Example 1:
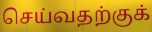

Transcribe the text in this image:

செய்வதற்குக்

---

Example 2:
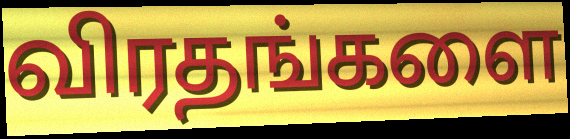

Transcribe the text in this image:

விரதங்களை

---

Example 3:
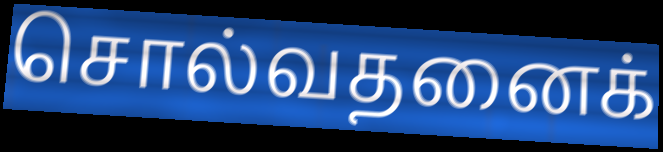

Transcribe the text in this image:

சொல்வதனைக்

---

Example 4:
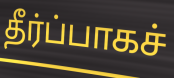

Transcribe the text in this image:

தீர்ப்பாகச்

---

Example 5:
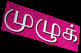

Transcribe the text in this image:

முழுக்